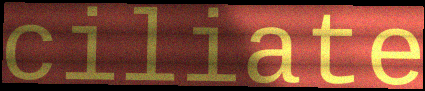
ciliate